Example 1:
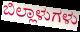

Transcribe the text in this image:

ಬಿಲ್ಲಾಳುಗಳು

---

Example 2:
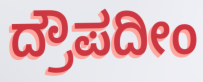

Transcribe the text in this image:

ದ್ರೌಪದೀಂ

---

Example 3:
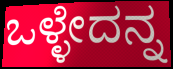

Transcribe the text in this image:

ಒಳ್ಳೇದನ್ನ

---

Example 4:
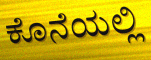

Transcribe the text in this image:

ಕೊನೆಯಲ್ಲಿ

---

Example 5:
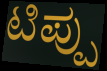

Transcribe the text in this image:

ಟಿಪ್ಪು